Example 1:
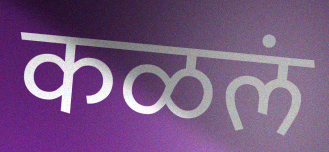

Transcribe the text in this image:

कळलं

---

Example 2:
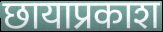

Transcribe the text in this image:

छायाप्रकाश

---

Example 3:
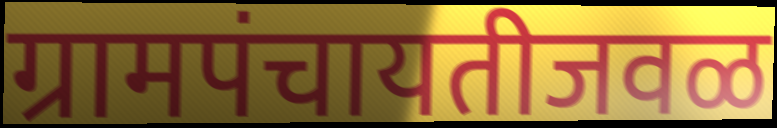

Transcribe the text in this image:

ग्रामपंचायतीजवळ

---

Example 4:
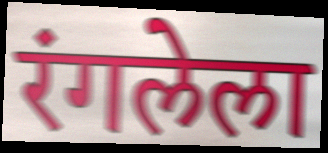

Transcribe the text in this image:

रंगलेला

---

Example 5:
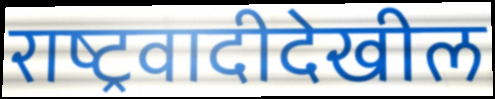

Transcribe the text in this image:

राष्ट्रवादीदेखील